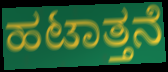
ಹಟಾತ್ತನೆ